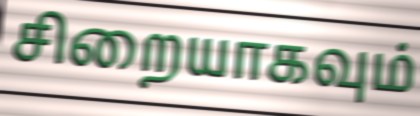
சிறையாகவும்